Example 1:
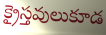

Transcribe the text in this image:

క్రైస్తవులుకూడ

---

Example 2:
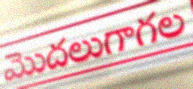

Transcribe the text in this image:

మొదలుగాగల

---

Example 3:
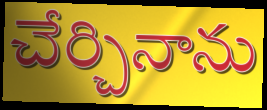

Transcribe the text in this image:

చేర్చినాను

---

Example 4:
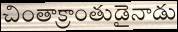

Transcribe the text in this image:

చింతాక్రాంతుడైనాడు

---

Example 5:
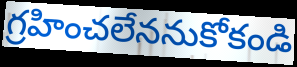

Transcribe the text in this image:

గ్రహించలేననుకోకండి